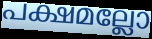
പക്ഷമല്ലോ